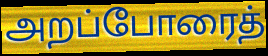
அறப்போரைத்